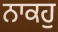
ਨਾਕਹੁ